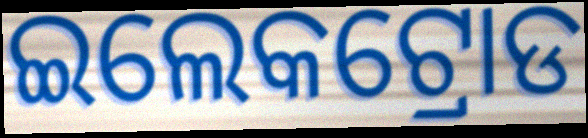
ଇଲେକଟ୍ରୋଡ